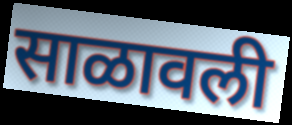
साळावली